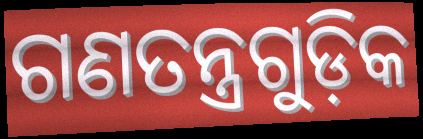
ଗଣତନ୍ତ୍ରଗୁଡ଼ିକ